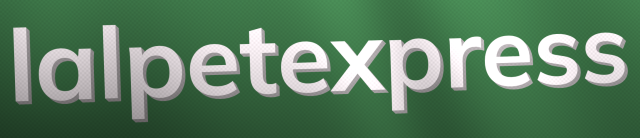
lalpetexpress